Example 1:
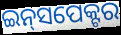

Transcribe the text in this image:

ଇନ୍‍ସପେକ୍ଟର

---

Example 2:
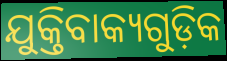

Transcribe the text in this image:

ଯୁକ୍ତିବାକ୍ୟଗୁଡ଼ିକ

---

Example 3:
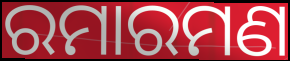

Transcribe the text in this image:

ରମାରମଣ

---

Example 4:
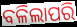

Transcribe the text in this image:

ବଳିଲାପରି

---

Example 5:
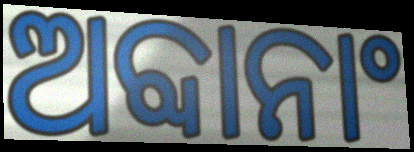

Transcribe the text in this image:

ଅବ୍ଦାନାଂ